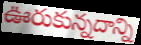
ఊరుకున్నదాన్ని